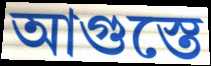
আগুস্তে